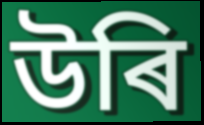
উৰি